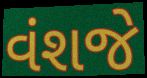
વંશજે